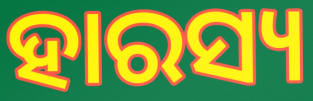
ହାରସ୍ୟ